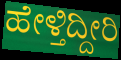
ಹೇಳ್ತಿದ್ದೀರಿ